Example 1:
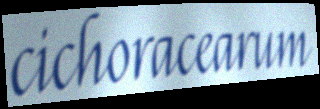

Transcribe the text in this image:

cichoracearum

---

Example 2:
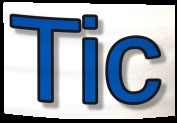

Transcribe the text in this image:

Tic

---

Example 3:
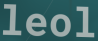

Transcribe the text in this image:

leol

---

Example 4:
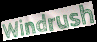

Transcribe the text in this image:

Windrush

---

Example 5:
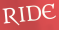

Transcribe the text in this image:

RIDE